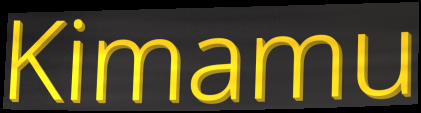
Kimamu